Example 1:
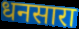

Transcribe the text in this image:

धनसारा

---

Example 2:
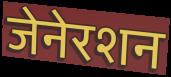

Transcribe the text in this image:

जेनेरशन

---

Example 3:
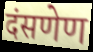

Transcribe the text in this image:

दंसणेण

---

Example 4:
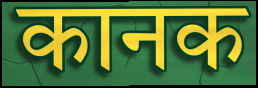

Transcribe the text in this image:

कानक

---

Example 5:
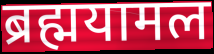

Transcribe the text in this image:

ब्रह्मयामल